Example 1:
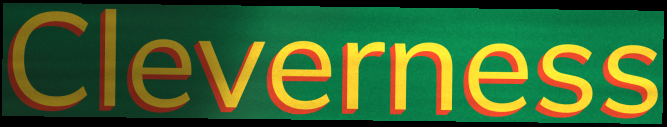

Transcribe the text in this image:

Cleverness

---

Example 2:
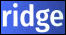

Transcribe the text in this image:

ridge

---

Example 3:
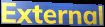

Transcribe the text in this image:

External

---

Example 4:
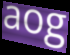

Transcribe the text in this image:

aog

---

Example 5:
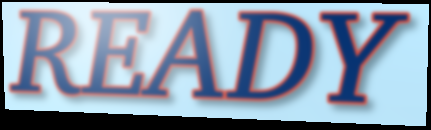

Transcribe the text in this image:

READY